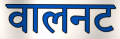
वालनट